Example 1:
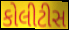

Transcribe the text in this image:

કોલીટીસ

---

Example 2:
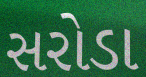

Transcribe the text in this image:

સરોડા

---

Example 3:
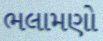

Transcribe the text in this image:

ભલામણો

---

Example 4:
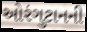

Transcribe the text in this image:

ઓરંગુટાનની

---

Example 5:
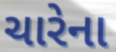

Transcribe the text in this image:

ચારેના